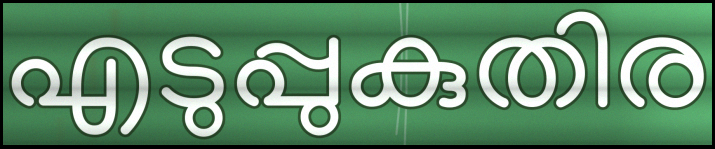
എടുപ്പുകുതിര